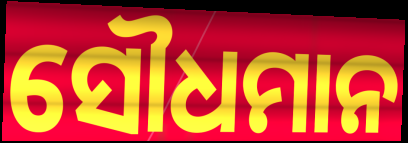
ସୌଧମାନ